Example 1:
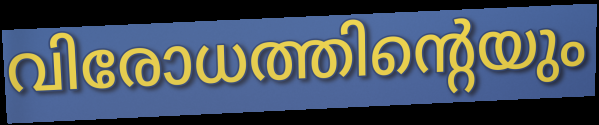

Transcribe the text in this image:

വിരോധത്തിന്റെയും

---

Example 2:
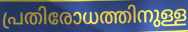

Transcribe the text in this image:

പ്രതിരോധത്തിനുള്ള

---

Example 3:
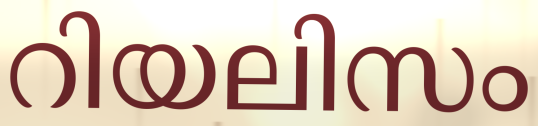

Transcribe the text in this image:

റിയലിസം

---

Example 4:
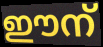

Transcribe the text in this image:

ഈന്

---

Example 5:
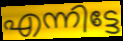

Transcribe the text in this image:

എന്നിട്ടേ